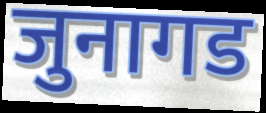
जुनागड